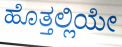
ಹೊತ್ತಲ್ಲಿಯೇ